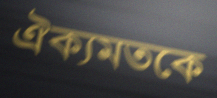
ঐক্যমতকে